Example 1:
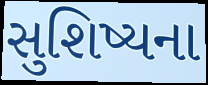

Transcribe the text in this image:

સુશિષ્યના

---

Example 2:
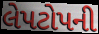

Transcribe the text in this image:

લેપટોપની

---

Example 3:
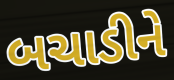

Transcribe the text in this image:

બચાડીને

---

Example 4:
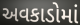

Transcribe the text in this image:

અવકાડોમાં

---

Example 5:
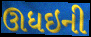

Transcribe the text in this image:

ઊધઇની